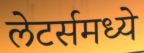
लेटर्समध्ये